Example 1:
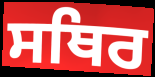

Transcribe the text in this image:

ਸਥਿਰ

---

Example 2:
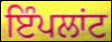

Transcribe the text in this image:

ਇੰਪਲਾਂਟ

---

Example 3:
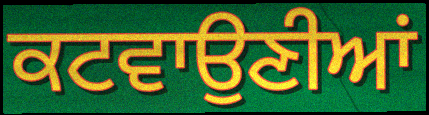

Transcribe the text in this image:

ਕਟਵਾਉਣੀਆਂ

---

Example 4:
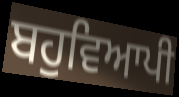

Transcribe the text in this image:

ਬਹੁਵਿਆਪੀ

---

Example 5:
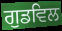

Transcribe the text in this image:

ਗੁਡਵਿਲ